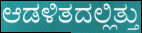
ಆಡಳಿತದಲ್ಲಿತ್ತು